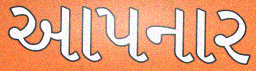
આપનાર